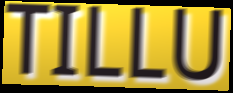
TILLU